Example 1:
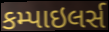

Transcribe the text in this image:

કમ્પાઇલર્સ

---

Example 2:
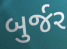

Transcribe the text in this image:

બુર્જર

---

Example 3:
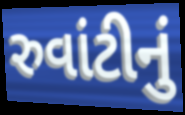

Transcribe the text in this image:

રુવાંટીનું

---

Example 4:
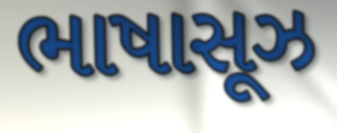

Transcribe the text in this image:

ભાષાસૂઝ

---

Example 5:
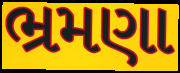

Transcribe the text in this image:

ભ્રમણા